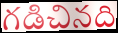
గడిచినది